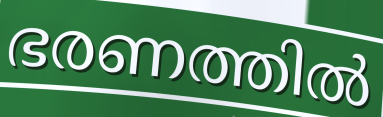
ഭരണത്തിൽ